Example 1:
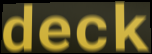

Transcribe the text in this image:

deck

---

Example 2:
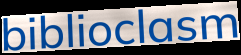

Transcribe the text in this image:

biblioclasm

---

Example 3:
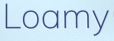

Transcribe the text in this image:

Loamy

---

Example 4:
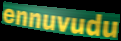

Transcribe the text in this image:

ennuvudu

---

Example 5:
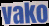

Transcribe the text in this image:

vako